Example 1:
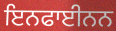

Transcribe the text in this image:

ਇਨਫਾਈਨਨ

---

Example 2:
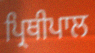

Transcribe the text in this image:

ਪ੍ਰਿਥੀਪਾਲ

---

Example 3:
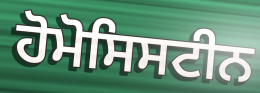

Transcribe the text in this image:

ਹੋਮੋਸਿਸਟੀਨ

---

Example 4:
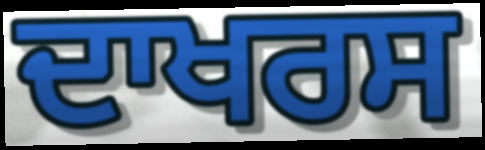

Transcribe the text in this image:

ਦਾਖਰਸ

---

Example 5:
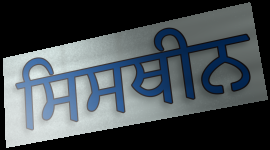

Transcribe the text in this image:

ਸਿਸਥੀਨ